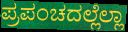
ಪ್ರಪಂಚದಲ್ಲೆಲ್ಲಾ